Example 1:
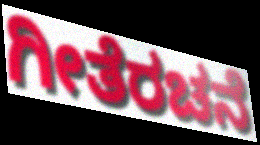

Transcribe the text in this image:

ಗೀತೆರಚನೆ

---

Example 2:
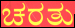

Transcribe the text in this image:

ಚರತು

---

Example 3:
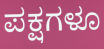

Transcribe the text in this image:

ಪಕ್ಷಗಳೂ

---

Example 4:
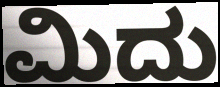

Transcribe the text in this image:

ಮಿದು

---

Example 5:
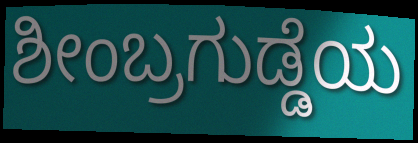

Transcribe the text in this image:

ಶೀಂಬ್ರಗುಡ್ಡೆಯ